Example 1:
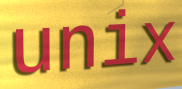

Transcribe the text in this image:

unix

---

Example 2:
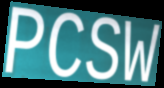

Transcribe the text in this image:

PCSW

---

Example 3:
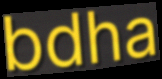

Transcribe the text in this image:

bdha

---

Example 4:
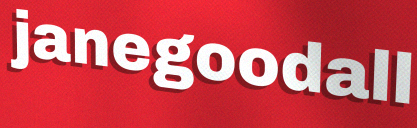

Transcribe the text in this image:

janegoodall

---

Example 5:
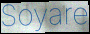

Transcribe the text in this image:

Soyare